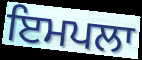
ਇਮਪਲਾ